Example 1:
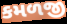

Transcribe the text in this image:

કમળજી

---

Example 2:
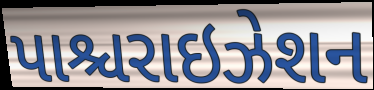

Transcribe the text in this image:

પાશ્ચરાઇઝેશન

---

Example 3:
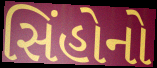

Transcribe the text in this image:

સિંહોનો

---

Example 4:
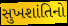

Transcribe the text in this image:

સુખશાંતિનો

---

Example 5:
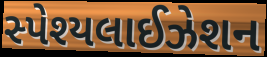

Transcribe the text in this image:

સ્પેશ્યલાઈઝેશન